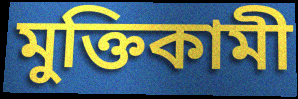
মুক্তিকামী